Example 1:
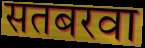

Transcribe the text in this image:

सतबरवा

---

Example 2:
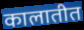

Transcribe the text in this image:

कालातीत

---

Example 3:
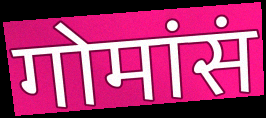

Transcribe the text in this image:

गोमांसं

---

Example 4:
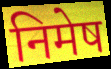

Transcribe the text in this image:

निमेष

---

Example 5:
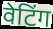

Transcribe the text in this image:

वेटिंग